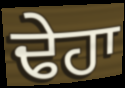
ਢੇਹਾ